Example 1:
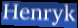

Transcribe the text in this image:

Henryk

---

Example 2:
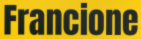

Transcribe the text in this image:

Francione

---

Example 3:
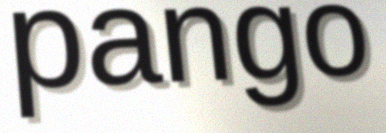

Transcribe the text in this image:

pango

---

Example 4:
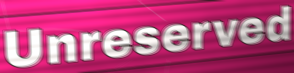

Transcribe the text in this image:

Unreserved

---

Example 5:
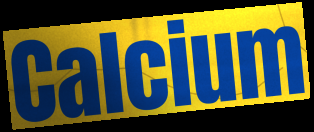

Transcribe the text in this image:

Calcium